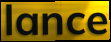
lance